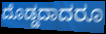
ದೊಡ್ಡದಾದರೂ